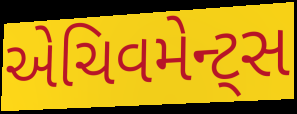
એચિવમેન્ટ્સ